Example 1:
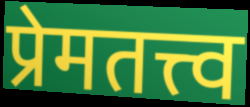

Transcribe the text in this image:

प्रेमतत्त्व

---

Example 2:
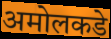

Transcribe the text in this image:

अमोलकडे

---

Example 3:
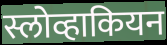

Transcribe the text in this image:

स्लोव्हाकियन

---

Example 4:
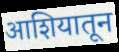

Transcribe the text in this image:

आशियातून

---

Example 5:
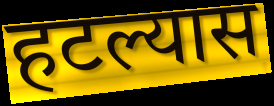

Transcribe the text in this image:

हटल्यास